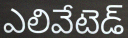
ఎలివేటెడ్